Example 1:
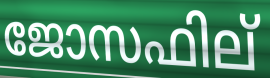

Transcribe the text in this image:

ജോസഫില്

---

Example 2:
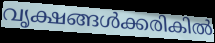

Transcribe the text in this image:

വൃക്ഷങ്ങൾക്കരികിൽ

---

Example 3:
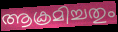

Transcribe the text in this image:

ആക്രമിച്ചതും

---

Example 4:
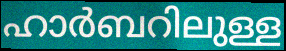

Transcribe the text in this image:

ഹാർബറിലുള്ള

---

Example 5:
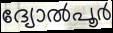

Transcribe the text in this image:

ദ്യോൽപൂർ